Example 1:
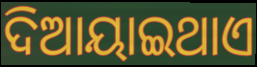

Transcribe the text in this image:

ଦିଆୟାଇଥାଏ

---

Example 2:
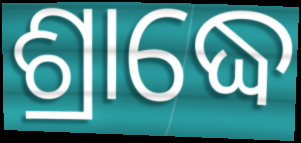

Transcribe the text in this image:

ଶ୍ରାଦ୍ଧେ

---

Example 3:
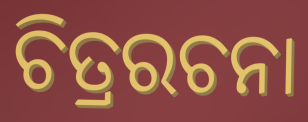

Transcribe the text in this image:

ଚିତ୍ରରଚନା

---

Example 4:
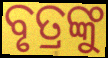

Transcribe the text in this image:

ବୃତ୍ରଙ୍କୁ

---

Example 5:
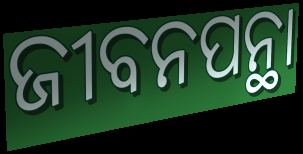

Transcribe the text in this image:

ଜୀବନପନ୍ଥା